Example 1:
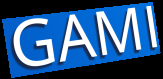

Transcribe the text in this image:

GAMI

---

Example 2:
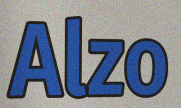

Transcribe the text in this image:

Alzo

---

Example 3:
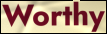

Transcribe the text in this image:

Worthy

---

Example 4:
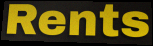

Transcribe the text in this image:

Rents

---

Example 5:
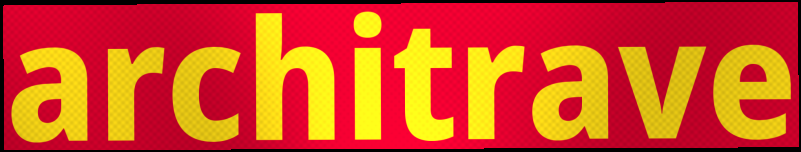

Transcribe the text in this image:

architrave